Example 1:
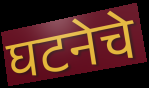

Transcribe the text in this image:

घटनेचे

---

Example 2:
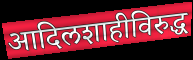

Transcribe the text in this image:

आदिलशाहीविरुद्ध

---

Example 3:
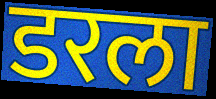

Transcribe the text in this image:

डरला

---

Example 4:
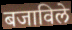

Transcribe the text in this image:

बजाविले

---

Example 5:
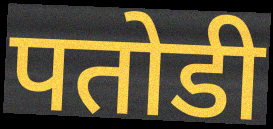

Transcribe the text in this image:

पतोडी